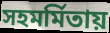
সহমর্মিতায়